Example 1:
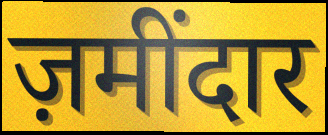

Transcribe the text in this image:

ज़मींदार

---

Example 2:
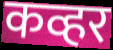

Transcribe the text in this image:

कव्हर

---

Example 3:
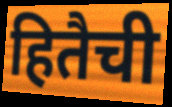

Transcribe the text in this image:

हितैची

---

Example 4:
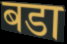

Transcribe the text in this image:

बडा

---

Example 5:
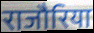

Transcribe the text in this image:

राजौरिया